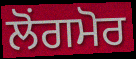
ਲੋਂਗਮੋਰ